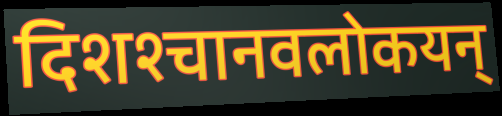
दिशश्चानवलोकयन्